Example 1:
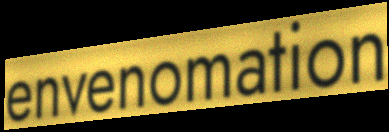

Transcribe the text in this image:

envenomation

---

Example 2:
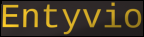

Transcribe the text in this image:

Entyvio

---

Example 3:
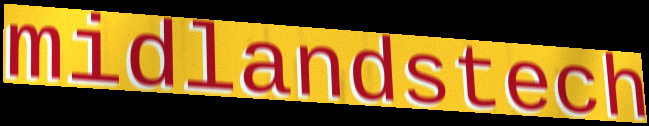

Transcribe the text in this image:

midlandstech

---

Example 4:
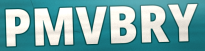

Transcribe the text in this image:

PMVBRY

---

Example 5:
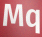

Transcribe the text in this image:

Mq